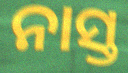
ନାସ୍ତ